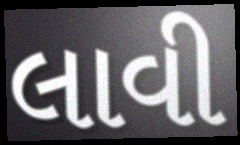
લાવી